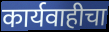
कार्यवाहीचा